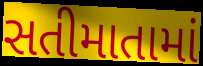
સતીમાતામાં